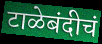
टाळेबंदीचं